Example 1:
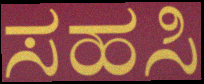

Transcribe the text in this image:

ಸಹಸಿ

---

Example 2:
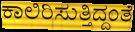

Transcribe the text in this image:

ಕಾಲಿರಿಸುತ್ತಿದ್ದಂತೆ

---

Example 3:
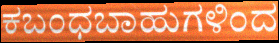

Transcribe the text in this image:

ಕಬಂಧಬಾಹುಗಳಿಂದ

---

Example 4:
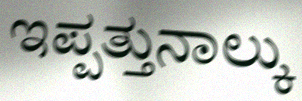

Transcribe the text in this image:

ಇಪ್ಪತ್ತುನಾಲ್ಕು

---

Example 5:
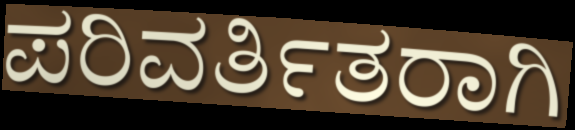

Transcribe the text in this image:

ಪರಿವರ್ತಿತರಾಗಿ